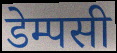
डेम्पसी